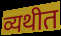
व्यथीत